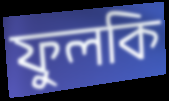
ফুলকি